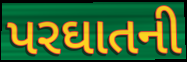
પરઘાતની